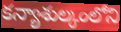
కన్యాశుల్కంలోని